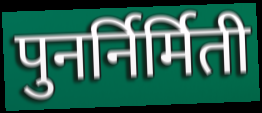
पुनर्निर्मिती